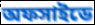
অফসাইডে